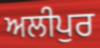
ਅਲੀਪੁਰ